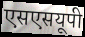
एसएसयूपी